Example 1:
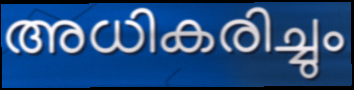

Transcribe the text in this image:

അധികരിച്ചും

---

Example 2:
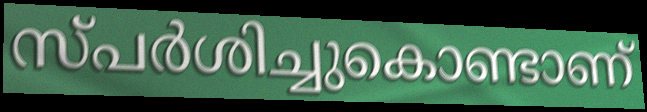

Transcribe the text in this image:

സ്പർശിച്ചുകൊണ്ടാണ്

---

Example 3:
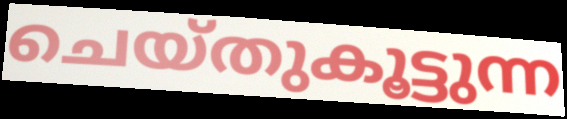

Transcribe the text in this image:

ചെയ്തുകൂട്ടുന്ന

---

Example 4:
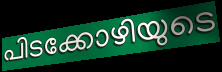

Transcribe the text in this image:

പിടക്കോഴിയുടെ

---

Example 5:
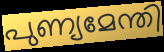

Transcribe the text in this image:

പുണ്യമേന്തി